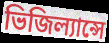
ভিজিল্যান্সে